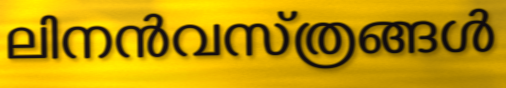
ലിനൻവസ്‌ത്രങ്ങൾ